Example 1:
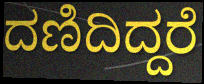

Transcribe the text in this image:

ದಣಿದಿದ್ದರೆ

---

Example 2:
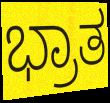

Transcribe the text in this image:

ಭ್ರಾತ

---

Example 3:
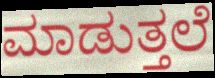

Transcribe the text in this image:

ಮಾಡುತ್ತಲೆ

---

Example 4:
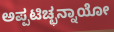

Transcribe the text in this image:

ಅಪ್ಪಟಿಚ್ಛನ್ನಾಯೋ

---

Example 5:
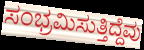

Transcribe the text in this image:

ಸಂಭ್ರಮಿಸುತ್ತಿದ್ದೆವು